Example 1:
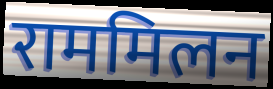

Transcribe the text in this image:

राममिलन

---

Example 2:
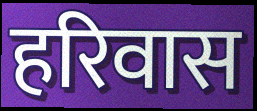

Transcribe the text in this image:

हरिवास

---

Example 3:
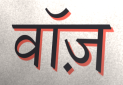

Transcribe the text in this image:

वॉज़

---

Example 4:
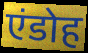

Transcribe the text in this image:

एंडोह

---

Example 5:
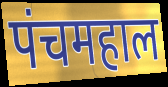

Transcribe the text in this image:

पंचमहाल